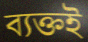
ব্যক্তই